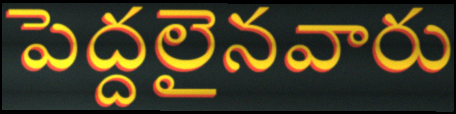
పెద్దలైనవారు